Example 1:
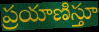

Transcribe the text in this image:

ప్రయాణిస్తూ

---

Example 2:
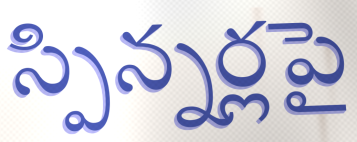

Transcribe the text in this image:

స్పిన్నర్లపై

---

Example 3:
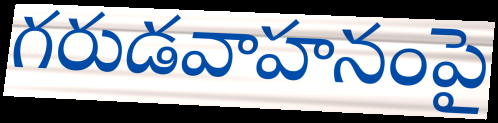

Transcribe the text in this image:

గరుడవాహనంపై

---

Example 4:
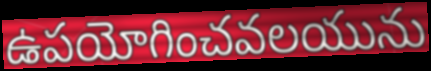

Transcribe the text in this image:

ఉపయోగించవలయును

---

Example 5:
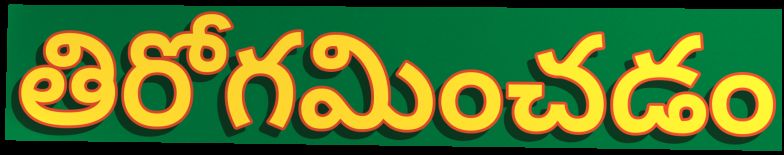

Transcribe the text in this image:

తిరోగమించడం